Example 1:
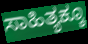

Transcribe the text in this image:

ಸಾಹಿತ್ಯಕ್ಕೂ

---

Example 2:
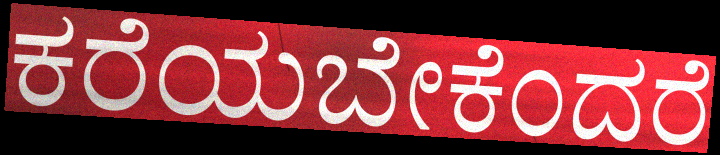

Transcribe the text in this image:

ಕರೆಯಬೇಕೆಂದರೆ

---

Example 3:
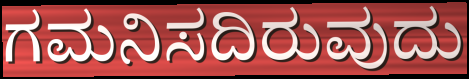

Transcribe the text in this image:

ಗಮನಿಸದಿರುವುದು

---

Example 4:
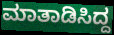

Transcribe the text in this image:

ಮಾತಾಡಿಸಿದ್ದ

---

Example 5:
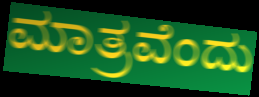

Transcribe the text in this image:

ಮಾತ್ರವೆಂದು